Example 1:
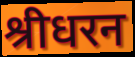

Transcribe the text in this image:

श्रीधरन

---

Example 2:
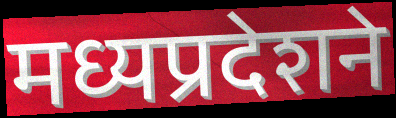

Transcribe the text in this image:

मध्यप्रदेशने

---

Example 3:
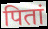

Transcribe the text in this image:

पितां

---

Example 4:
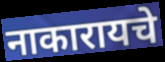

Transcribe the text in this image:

नाकारायचे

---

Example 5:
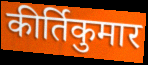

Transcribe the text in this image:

कीर्तिकुमार